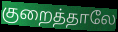
குறைத்தாலே